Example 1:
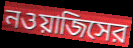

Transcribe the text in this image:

নওয়াজিসের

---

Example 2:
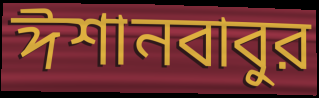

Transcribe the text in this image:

ঈশানবাবুর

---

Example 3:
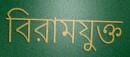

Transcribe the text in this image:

বিরামযুক্ত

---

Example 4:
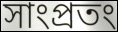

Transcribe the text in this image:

সাংপ্রতং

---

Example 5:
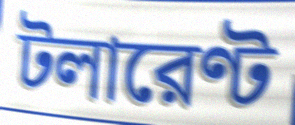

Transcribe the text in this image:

টলারেণ্ট